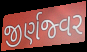
જીર્ણજ્વર